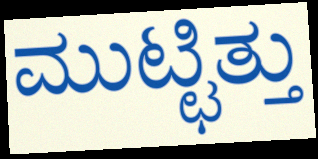
ಮುಟ್ಟಿತ್ತು